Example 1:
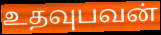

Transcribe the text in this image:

உதவுபவன்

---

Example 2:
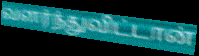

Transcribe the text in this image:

வளர்ந்துவிட்டான்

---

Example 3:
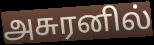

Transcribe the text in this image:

அசுரனில்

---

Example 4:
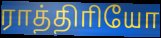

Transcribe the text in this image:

ராத்திரியோ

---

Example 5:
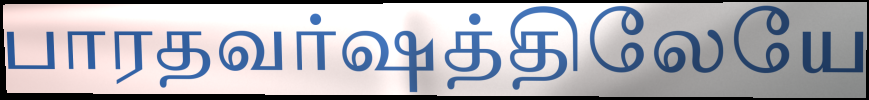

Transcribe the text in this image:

பாரதவர்ஷத்திலேயே